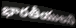
భారతీయులని